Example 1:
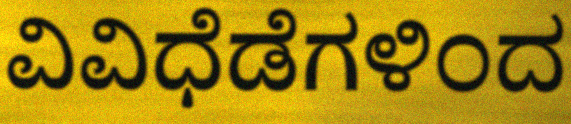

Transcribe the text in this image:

ವಿವಿಧೆಡೆಗಳಿಂದ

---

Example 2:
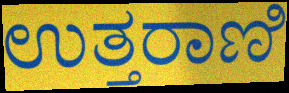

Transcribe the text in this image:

ಉತ್ತರಾಣಿ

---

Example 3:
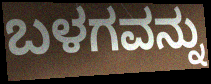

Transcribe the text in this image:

ಬಳಗವನ್ನು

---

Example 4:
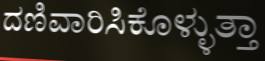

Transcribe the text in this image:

ದಣಿವಾರಿಸಿಕೊಳ್ಳುತ್ತಾ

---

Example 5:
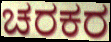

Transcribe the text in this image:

ಚರಕರ